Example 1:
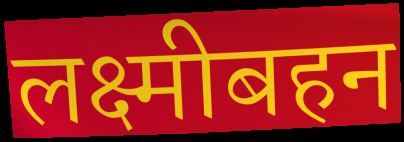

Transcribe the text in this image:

लक्ष्मीबहन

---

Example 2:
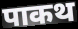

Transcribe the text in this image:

पाकथ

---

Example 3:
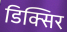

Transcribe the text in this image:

डिक्सिर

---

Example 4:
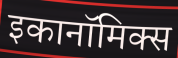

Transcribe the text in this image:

इकानॉमिक्स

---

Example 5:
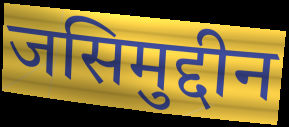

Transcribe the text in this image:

जसिमुद्दीन